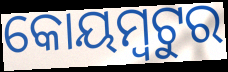
କୋୟମ୍ବଟୁର